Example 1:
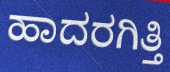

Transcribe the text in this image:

ಹಾದರಗಿತ್ತಿ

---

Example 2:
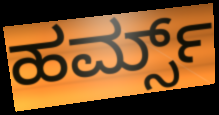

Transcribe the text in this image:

ಹರ್ಮ್ಸ್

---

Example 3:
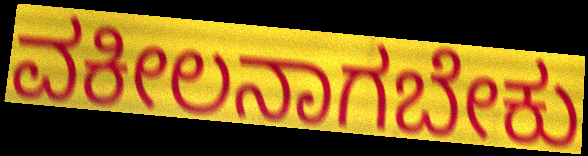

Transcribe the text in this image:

ವಕೀಲನಾಗಬೇಕು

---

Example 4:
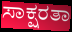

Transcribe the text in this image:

ಸಾಕ್ಷರತಾ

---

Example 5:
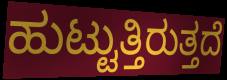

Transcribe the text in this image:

ಹುಟ್ಟುತ್ತಿರುತ್ತದೆ